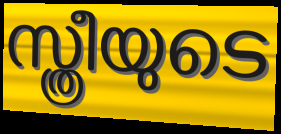
സ്ത്രീയുടെ